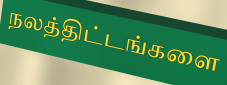
நலத்திட்டங்களை